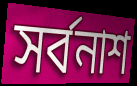
সর্বনাশ